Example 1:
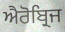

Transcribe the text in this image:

ਐਰੋਬ੍ਰਿਜ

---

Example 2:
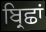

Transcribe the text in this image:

ਬ੍ਰਿਛਾਂ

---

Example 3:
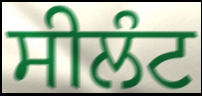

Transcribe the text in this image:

ਸੀਲੰਟ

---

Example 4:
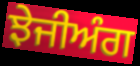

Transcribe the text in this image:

ਝੇਜੀਅੰਗ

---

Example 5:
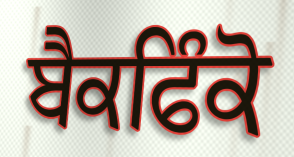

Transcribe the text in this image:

ਬੈਕਫਿੰਕੋ